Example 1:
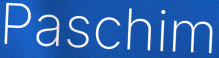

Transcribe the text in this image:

Paschim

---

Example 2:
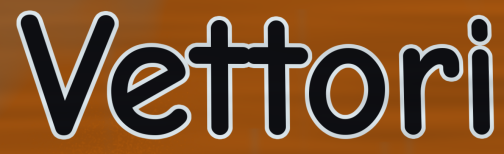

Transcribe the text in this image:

Vettori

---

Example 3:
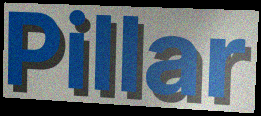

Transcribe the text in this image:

Pillar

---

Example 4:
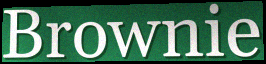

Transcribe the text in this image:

Brownie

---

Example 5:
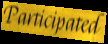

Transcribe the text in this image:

Participated